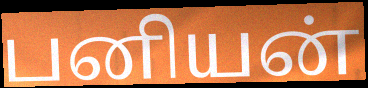
பனியன்